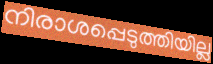
നിരാശപ്പെടുത്തിയില്ല